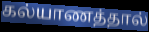
கல்யாணத்தால்